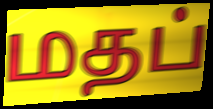
மதப்